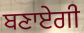
ਬਣਾਏਗੀ